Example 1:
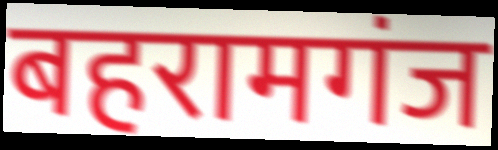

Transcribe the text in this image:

बहरामगंज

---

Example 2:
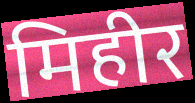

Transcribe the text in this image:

मिहीर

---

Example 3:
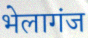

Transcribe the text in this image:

भेलागंज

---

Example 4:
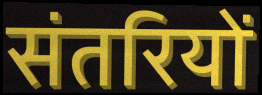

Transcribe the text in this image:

संतरियों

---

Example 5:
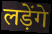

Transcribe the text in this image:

लड़ेंगे